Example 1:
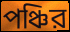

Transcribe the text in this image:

পঞ্চির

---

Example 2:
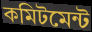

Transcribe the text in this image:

কমিটমেন্ট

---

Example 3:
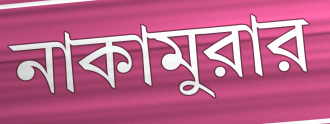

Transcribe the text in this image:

নাকামুরার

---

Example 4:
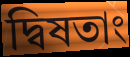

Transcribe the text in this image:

দ্বিষতাং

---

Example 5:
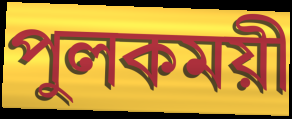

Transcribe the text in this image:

পুলকময়ী